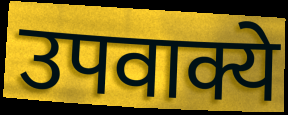
उपवाक्ये